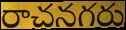
రాచనగరు